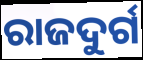
ରାଜଦୁର୍ଗ